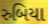
રુબિયા